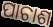
ପାଚାଶ